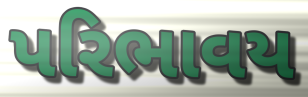
પરિભાવય